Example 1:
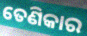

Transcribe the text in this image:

ତେଣିକାର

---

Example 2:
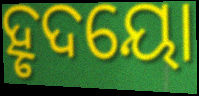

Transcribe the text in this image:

ହୃଦୟୋ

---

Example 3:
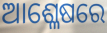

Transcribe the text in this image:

ଆଶ୍ଳେଷରେ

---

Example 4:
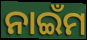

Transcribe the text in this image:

ନାଇଁମ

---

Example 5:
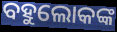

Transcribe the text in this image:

ବହୁଲୋକଙ୍କ